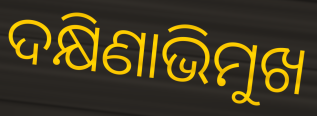
ଦକ୍ଷିଣାଭିମୁଖ